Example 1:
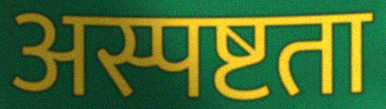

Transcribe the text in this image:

अस्पष्टता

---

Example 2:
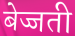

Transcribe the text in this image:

बेज्जती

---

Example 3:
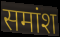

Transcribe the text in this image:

समांश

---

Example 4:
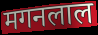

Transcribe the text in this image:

मगनलाल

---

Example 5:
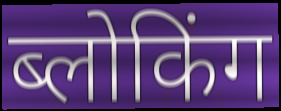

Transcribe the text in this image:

ब्लोकिंग